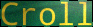
Croll